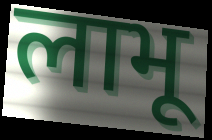
लाभू